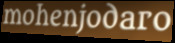
mohenjodaro